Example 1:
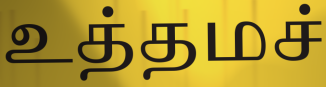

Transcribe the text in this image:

உத்தமச்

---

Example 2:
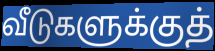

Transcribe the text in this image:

வீடுகளுக்குத்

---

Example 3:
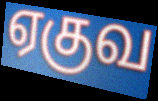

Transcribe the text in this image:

ஏகுவ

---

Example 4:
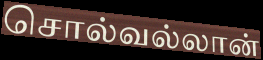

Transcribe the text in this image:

சொல்வல்லான்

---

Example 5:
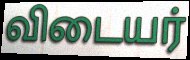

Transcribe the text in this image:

விடையர்